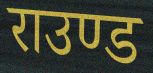
राउण्ड